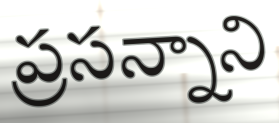
ప్రసన్నాని